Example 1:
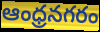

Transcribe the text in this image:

ఆంధ్రనగరం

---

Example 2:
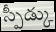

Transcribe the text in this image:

స్పీడ్కు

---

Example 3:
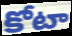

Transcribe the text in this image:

కోటా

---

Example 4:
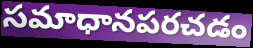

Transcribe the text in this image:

సమాధానపరచడం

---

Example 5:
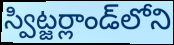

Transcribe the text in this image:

స్విట్జర్లాండ్‌లోని